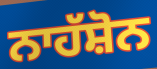
ਨਾਹੱਸ਼ੋਨ